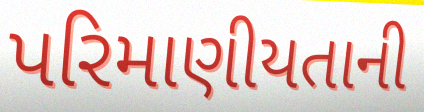
પરિમાણીયતાની